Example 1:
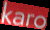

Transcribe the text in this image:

karo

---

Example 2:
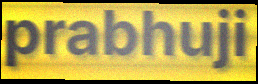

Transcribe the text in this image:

prabhuji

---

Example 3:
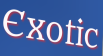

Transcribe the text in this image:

Exotic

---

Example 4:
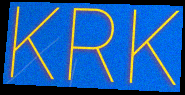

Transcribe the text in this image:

KRK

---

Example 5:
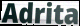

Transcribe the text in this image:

Adrita